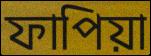
ফাপিয়া